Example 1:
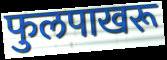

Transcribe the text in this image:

फुलपाखरू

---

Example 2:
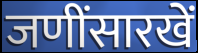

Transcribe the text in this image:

जणींसारखें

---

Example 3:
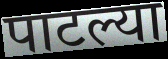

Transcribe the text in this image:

पाटल्या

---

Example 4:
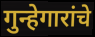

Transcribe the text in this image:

गुन्हेगारांचे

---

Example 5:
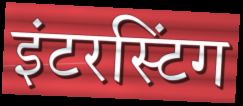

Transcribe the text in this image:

इंटरस्टिंग